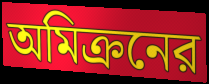
অমিক্রনের